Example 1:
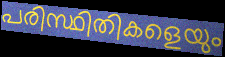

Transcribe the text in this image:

പരിസ്ഥിതികളെയും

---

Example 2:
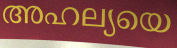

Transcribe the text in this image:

അഹല്യയെ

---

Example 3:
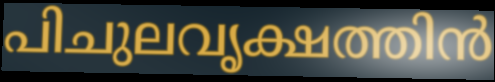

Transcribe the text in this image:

പിചുലവൃക്ഷത്തിൻ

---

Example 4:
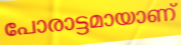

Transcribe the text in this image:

പോരാട്ടമായാണ്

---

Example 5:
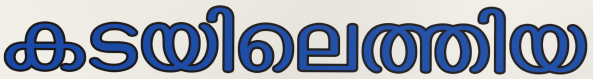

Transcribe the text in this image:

കടയിലെത്തിയ